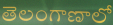
తెలంగాణాలో